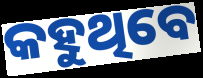
କହୁଥିବେ